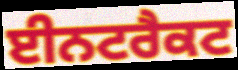
ਈਨਟਰੈਕਟ